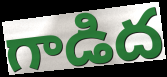
గాడిద